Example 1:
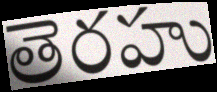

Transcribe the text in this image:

తెరహు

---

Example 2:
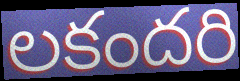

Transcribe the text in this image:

లకందరి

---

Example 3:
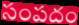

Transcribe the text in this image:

సంపదం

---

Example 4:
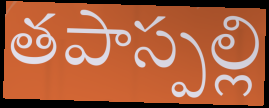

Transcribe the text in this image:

తపాస్పల్లి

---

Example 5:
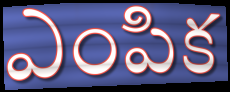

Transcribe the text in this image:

ఎంపిక